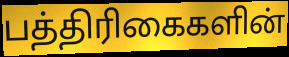
பத்திரிகைகளின்